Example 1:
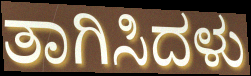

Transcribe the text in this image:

ತಾಗಿಸಿದಳು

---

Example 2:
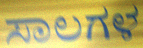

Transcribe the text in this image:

ಸಾಲಗಳ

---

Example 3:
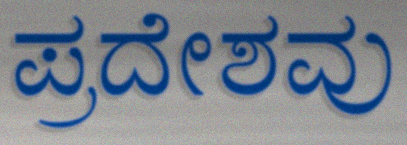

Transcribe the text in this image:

ಪ್ರದೇಶವು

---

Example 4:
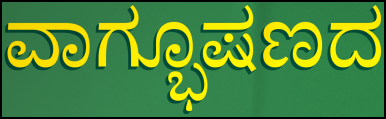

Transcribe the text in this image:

ವಾಗ್ಭೂಷಣದ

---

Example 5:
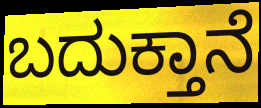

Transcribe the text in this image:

ಬದುಕ್ತಾನೆ